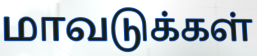
மாவடுக்கள்